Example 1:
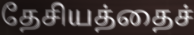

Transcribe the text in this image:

தேசியத்தைச்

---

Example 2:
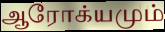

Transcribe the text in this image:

ஆரோக்யமும்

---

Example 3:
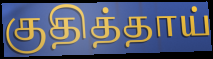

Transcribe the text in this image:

குதித்தாய்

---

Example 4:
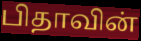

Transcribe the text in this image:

பிதாவின்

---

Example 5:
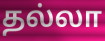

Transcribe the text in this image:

தல்லா